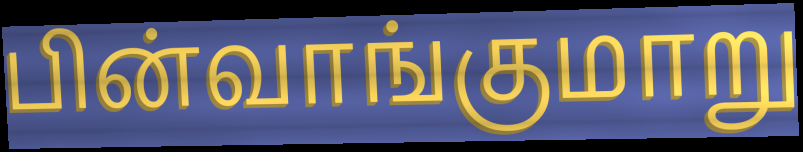
பின்வாங்குமாறு